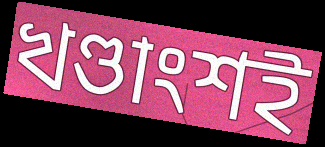
খণ্ডাংশই